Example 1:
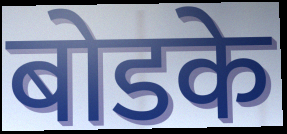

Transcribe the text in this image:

बोडके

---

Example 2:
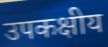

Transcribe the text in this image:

उपकक्षीय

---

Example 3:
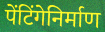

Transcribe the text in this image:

पेंटिंगेनिर्माण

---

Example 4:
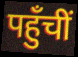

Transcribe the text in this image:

पहुँचीं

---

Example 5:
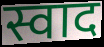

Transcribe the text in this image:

स्‍वाद